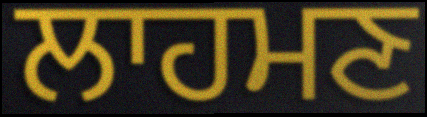
ਲਾਹਮਣ